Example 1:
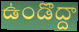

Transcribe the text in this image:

ఉండొద్దా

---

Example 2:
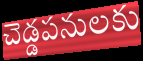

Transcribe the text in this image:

చెడ్డపనులకు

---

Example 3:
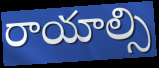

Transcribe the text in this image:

రాయాల్సి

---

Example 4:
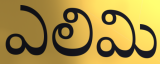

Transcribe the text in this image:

ఎలిమి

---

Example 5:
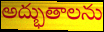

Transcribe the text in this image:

అద్భుతాలను